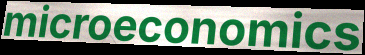
microeconomics